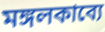
মঙ্গলকাব্যে